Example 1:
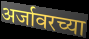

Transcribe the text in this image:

अर्जावरच्या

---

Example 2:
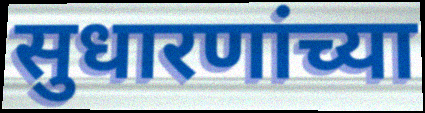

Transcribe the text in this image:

सुधारणांच्या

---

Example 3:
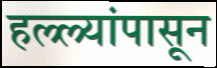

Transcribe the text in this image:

हल्ल्यांपासून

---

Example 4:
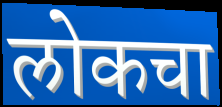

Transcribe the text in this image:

लोकचा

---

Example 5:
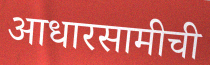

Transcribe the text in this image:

आधारसामीची